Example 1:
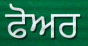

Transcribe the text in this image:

ਫੋਅਰ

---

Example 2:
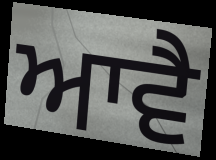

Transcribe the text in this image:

ਆਵੈ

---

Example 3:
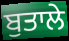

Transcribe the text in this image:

ਬੁਤਾਲੇ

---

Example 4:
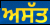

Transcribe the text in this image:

ਅਸੱਤ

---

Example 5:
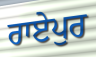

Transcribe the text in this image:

ਰਾਏਪੁਰ